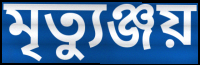
মৃত্যুঞ্জয়